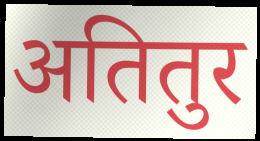
अतितुर